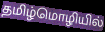
தமிழ்மொழியில்